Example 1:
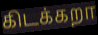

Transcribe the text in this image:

கிடக்கறா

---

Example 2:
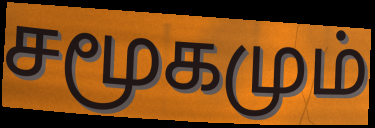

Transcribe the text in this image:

சமூகமும்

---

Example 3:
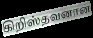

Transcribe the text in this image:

கிறிஸ்தவனான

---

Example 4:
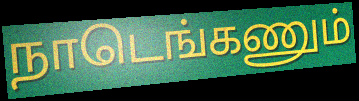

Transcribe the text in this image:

நாடெங்கணும்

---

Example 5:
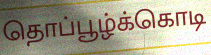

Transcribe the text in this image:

தொப்பூழ்க்கொடி